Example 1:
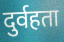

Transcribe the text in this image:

दुर्वहता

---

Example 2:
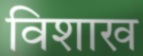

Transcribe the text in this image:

विशाख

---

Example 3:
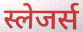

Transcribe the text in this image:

स्लेजर्स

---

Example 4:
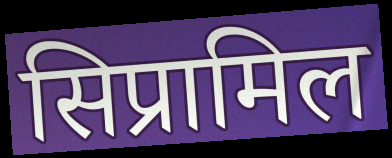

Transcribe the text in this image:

सिप्रामिल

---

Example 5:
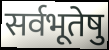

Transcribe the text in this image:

सर्वभूतेषु